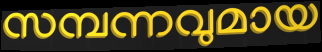
സമ്പന്നവുമായ